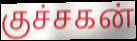
குச்சகன்